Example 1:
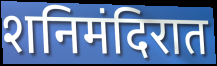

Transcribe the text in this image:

शनिमंदिरात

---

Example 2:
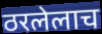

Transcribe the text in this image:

ठरलेलाच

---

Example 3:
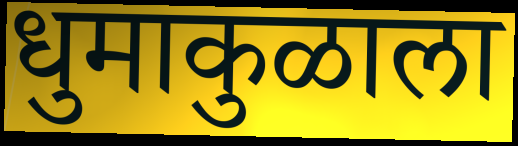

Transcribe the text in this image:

धुमाकुळाला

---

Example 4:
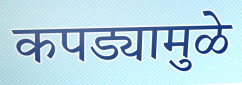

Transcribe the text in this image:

कपड्यामुळे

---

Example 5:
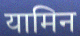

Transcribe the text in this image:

यामिन